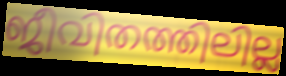
ജീവിതത്തിലില്ല